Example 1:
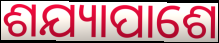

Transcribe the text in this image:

ଶଯ୍ୟାପାଶେ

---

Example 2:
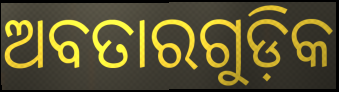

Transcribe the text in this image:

ଅବତାରଗୁଡ଼ିକ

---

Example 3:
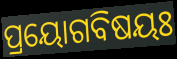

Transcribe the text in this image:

ପ୍ରୟୋଗବିଷୟଃ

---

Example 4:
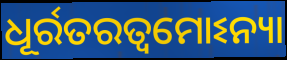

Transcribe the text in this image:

ଧୂର୍ରତରତ୍ୱମୋଽନ୍ୟା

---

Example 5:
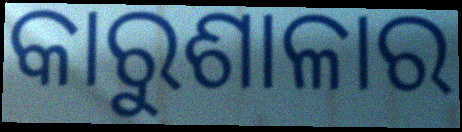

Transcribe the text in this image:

କାରୁଶାଳାର